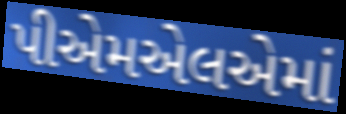
પીએમએલએમાં